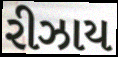
રીઝાય